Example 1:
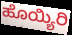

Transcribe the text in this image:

ಹೊಯ್ಯಿರಿ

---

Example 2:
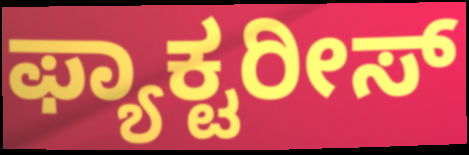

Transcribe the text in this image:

ಫ್ಯಾಕ್ಟರೀಸ್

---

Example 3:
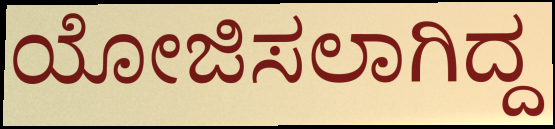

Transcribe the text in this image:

ಯೋಜಿಸಲಾಗಿದ್ದ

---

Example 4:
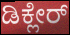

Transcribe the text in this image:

ಡಿಕ್ಲೇರ್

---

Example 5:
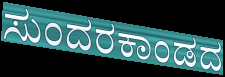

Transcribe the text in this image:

ಸುಂದರಕಾಂಡದ